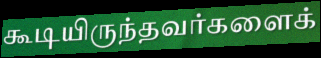
கூடியிருந்தவர்களைக்